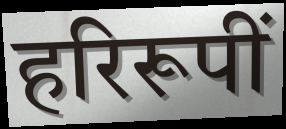
हरिरूपीं